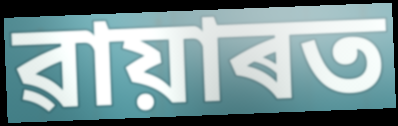
ৱায়াৰত